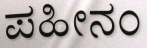
ಪಹೀನಂ